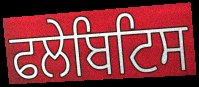
ਫਲੇਬਿਟਿਸ